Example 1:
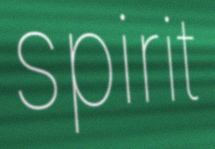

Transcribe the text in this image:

spirit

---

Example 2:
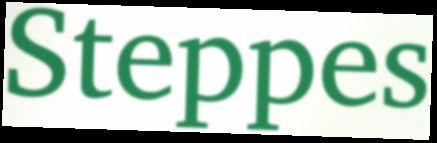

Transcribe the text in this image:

Steppes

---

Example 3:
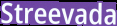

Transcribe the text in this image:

Streevada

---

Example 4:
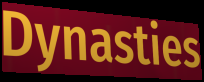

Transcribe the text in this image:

Dynasties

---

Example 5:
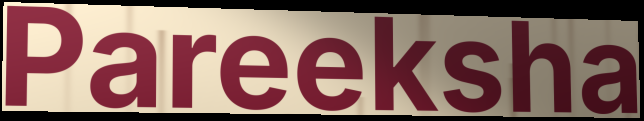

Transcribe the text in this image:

Pareeksha